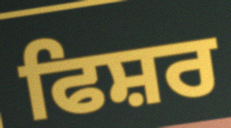
ਫਿਸ਼ਰ